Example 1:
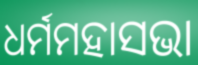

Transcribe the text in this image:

ଧର୍ମମହାସଭା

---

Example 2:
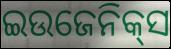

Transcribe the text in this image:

ଇଉଜେନିକ୍‌ସ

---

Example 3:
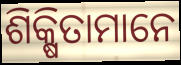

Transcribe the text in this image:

ଶିକ୍ଷିତାମାନେ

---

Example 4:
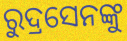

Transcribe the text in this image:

ରୁଦ୍ରସେନଙ୍କୁ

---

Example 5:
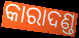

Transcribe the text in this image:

କାରାଦଣ୍ଡ